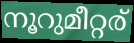
നൂറുമീറ്റര്